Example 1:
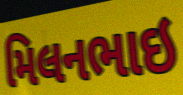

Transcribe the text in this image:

મિલનભાઇ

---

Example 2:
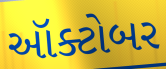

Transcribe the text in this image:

ઑક્ટોબર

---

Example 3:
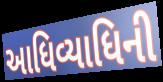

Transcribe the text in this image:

આધિવ્યાધિની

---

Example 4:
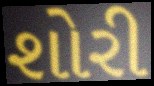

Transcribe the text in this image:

શોરી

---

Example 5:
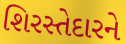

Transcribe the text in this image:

શિરસ્તેદારને